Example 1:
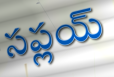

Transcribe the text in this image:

సప్లయ్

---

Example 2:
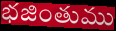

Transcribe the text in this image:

భజింతుము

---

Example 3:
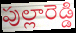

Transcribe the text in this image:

పుల్లారెడ్డి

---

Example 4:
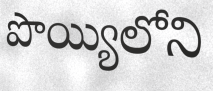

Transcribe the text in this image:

పొయ్యిలోని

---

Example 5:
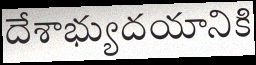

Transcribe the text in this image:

దేశాభ్యుదయానికి